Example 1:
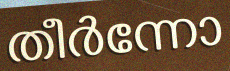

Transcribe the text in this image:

തീർന്നോ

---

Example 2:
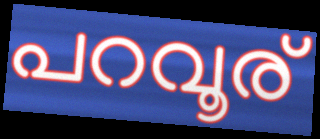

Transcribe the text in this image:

പറവൂര്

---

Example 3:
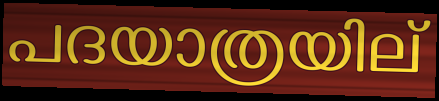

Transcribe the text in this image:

പദയാത്രയില്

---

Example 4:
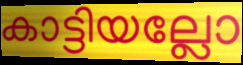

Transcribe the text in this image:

കാട്ടിയല്ലോ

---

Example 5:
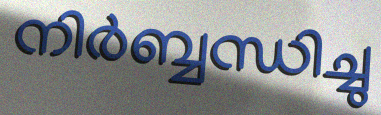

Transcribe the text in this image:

നിർബ്ബന്ധിച്ചു